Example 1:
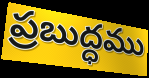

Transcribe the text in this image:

ప్రబుద్ధము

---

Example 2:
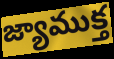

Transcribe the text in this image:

జ్యాముక్త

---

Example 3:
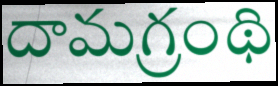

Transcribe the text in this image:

దామగ్రంథి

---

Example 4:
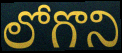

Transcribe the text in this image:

లోగొని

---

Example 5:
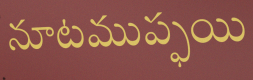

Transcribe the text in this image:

నూటముప్ఫయి